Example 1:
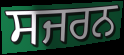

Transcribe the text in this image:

ਸਜਰਨ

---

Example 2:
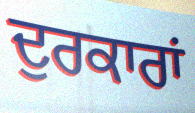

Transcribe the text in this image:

ਦੁਰਕਾਰਾਂ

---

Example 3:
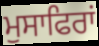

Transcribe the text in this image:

ਮੁਸਾਫਿਰਾਂ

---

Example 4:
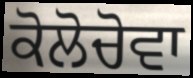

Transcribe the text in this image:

ਕੋਲੋਚੋਵਾ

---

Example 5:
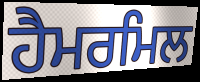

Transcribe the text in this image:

ਹੈਮਰਮਿਲ